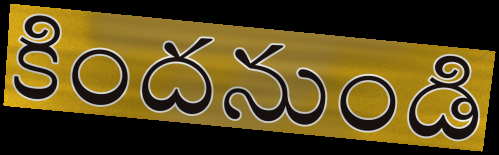
కిందనుండి